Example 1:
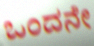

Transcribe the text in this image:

ಒಂದನೇ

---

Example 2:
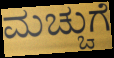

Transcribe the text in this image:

ಮಚ್ಚುಗೆ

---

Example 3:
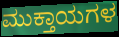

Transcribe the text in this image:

ಮುಕ್ತಾಯಗಳ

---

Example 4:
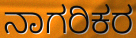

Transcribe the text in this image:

ನಾಗರಿಕರ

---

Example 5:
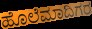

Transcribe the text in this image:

ಹೊಲೆಮಾದಿಗರ